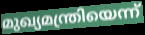
മുഖ്യമന്ത്രിയെന്ന്